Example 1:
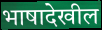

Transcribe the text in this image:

भाषादेखील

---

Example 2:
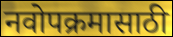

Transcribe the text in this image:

नवोपक्रमासाठी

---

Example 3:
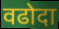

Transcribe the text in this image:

वढोदा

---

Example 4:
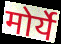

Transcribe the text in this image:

मोर्ये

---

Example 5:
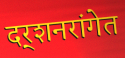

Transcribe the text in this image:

दर्शनरांगेत